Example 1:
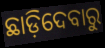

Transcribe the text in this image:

ଛାଡ଼ିଦେବାରୁ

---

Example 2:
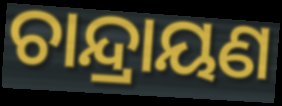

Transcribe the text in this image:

ଚାନ୍ଦ୍ରାୟଣ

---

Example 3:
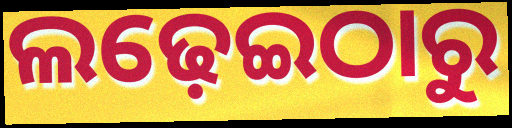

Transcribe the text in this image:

ଲଢ଼େଇଠାରୁ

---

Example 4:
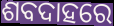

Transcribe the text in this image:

ଶବଦାହରେ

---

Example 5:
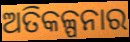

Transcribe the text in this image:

ଅତିକଳ୍ପନାର